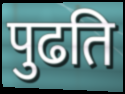
पुढति